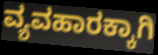
ವ್ಯವಹಾರಕ್ಕಾಗಿ